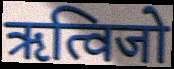
ऋत्विजो